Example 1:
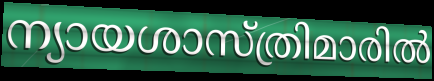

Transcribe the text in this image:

ന്യായശാസ്ത്രിമാരിൽ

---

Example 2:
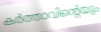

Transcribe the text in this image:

കർത്താവിന്റെയും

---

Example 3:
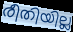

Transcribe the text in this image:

രീതിയില്ല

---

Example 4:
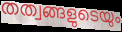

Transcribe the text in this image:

തത്വങ്ങളുടെയും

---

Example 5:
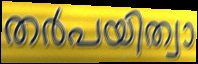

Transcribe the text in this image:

തർപയിത്വാ